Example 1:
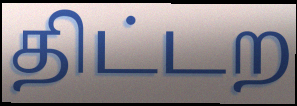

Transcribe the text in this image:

திட்டற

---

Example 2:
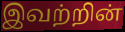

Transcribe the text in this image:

இவற்றின்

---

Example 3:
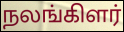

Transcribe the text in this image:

நலங்கிளர்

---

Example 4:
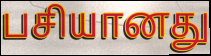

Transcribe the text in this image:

பசியானது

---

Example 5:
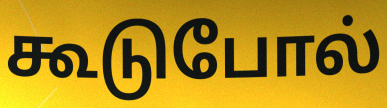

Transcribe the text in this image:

கூடுபோல்